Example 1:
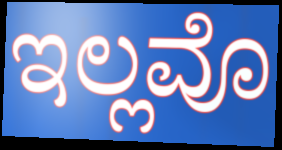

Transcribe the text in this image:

ಇಲ್ಲವೊ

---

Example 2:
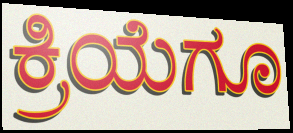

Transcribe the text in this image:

ಕ್ರಿಯೆಗೂ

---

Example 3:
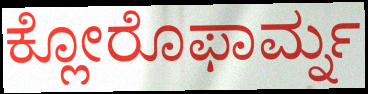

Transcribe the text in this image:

ಕ್ಲೋರೊಫಾರ್ಮ್ನ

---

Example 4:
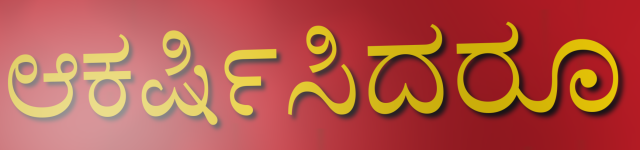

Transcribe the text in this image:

ಆಕರ್ಷಿಸಿದರೂ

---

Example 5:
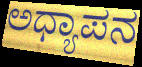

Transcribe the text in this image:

ಅಧ್ಯಾಪನ